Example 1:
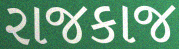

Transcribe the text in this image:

રાજકાજ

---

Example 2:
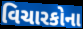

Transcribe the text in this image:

વિચારકોના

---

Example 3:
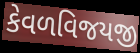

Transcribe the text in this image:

કેવળવિજયજી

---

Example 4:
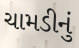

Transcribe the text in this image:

ચામડીનું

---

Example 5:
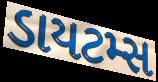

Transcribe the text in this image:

ડાયટમ્સ